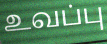
உவப்பு